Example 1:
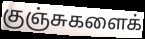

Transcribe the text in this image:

குஞ்சுகளைக்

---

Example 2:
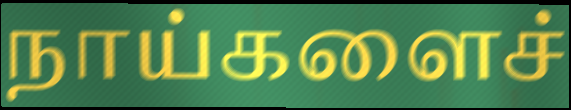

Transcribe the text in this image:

நாய்களைச்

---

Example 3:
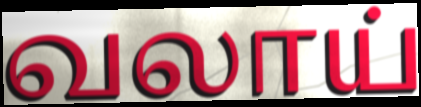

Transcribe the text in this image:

வலாய்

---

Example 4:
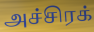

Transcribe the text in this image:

அச்சிரக்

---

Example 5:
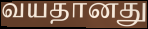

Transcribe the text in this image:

வயதானது